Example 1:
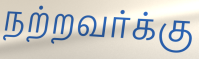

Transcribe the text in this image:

நற்றவர்க்கு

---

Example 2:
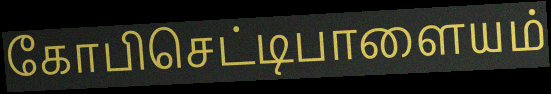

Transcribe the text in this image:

கோபிசெட்டிபாளையம்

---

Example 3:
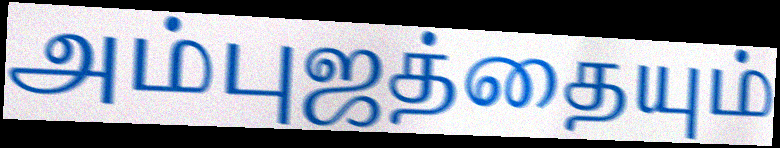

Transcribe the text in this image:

அம்புஜத்தையும்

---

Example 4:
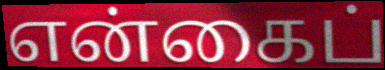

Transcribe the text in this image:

என்கைப்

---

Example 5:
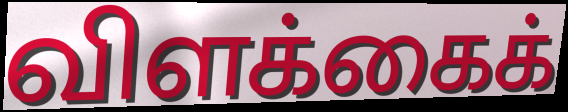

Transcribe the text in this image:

விளக்கைக்